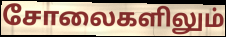
சோலைகளிலும்